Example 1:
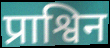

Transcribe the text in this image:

प्राश्विन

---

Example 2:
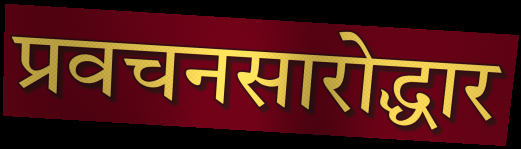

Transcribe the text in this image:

प्रवचनसारोद्धार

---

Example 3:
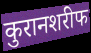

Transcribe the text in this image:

कुरानशरीफ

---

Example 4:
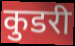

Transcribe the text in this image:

कुडरी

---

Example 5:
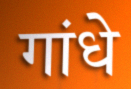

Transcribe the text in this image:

गांधे